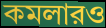
কমলারও